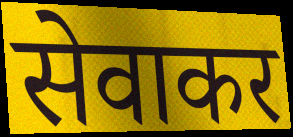
सेवाकर